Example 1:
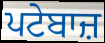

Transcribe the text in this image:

ਪਟੇਬਾਜ਼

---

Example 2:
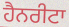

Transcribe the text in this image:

ਹੈਨਰੀਟਾ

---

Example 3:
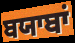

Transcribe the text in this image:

ਬਯਾਬਾਂ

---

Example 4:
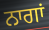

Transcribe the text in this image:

ਨਾਗਾਂ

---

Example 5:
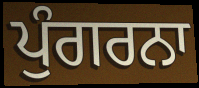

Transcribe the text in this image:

ਪੁੰਗਰਨਾ